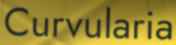
Curvularia